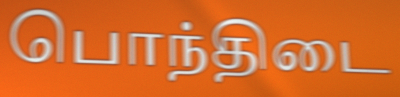
பொந்திடை